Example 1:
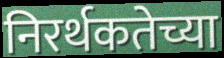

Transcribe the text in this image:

निरर्थकतेच्या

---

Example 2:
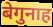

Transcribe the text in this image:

बेगुनाह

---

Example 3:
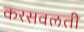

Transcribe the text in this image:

करसवलती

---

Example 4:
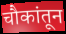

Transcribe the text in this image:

चौकांतून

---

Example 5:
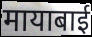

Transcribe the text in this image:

मायाबाई